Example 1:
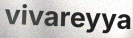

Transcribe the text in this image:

vivareyya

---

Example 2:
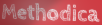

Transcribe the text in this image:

Methodica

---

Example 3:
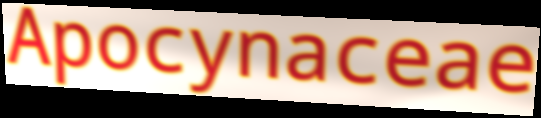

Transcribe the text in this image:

Apocynaceae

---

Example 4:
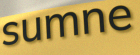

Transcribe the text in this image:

sumne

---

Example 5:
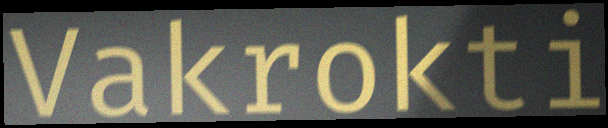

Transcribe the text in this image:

Vakrokti